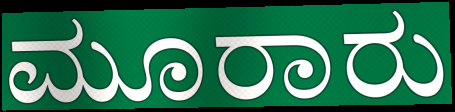
ಮೂರಾರು